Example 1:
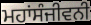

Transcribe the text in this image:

ਮਹਾਂਸੰਜੀਵਨੀ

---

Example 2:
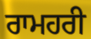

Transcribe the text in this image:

ਰਾਮਹਰੀ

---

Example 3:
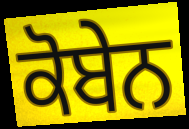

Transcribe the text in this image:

ਕੋਬੇਨ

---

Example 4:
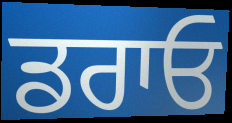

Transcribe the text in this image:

ਡਰਾਓ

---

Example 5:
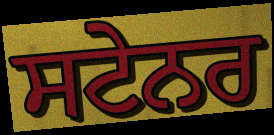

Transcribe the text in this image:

ਸਟੇਨਰ